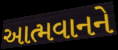
આત્મવાનને